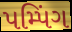
પમ્પિંગ